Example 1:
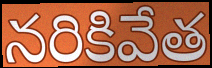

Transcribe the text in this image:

నరికివేత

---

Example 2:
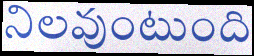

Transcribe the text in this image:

నిలవుంటుంది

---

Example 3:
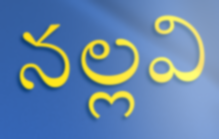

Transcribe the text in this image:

నల్లవి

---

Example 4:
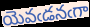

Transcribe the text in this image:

యెవఁడనఁగా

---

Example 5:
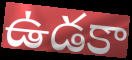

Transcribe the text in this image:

ఉడకా